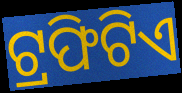
ଟ୍ରଫିଟିଏ